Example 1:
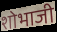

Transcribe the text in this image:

शोभाजी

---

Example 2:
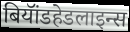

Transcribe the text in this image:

बियॉंडहेडलाइन्स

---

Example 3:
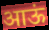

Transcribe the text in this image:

आऊं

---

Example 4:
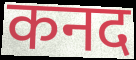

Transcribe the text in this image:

कनद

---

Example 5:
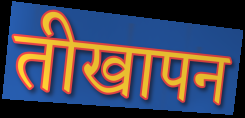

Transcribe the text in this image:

तीखापन